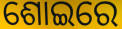
ଶୋଇରେ